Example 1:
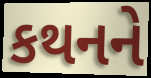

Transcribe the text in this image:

કથનને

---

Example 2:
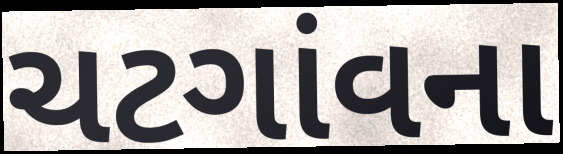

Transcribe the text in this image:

ચટગાંવના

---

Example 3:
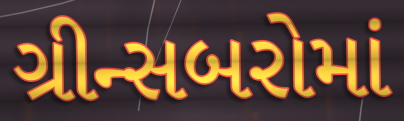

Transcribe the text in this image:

ગ્રીન્સબરોમાં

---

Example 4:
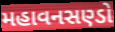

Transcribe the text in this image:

મહાવનસણ્ડો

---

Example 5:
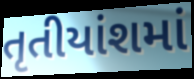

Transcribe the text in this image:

તૃતીયાંશમાં